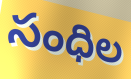
సంధిల